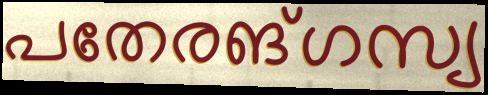
പതേരങ്ഗസ്യ